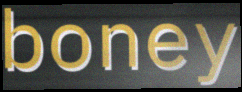
boney